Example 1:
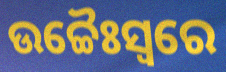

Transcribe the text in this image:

ଉଚ୍ଚୈଃସ୍ୱରେ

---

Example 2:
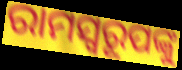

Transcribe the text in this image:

ରାମସ୍ୱରୂପଙ୍କୁ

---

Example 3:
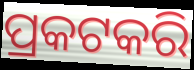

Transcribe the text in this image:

ପ୍ରକଟକରି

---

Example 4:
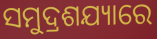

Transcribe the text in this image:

ସମୁଦ୍ରଶଯ୍ୟାରେ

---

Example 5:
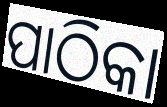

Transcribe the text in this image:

ପାଠିକା